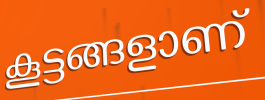
കൂട്ടങ്ങളാണ്